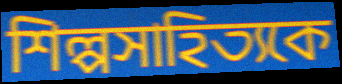
শিল্পসাহিত্যকে